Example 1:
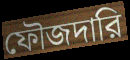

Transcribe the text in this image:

ফৌজদারি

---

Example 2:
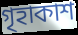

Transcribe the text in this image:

গৃহাকাশ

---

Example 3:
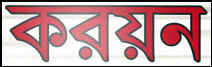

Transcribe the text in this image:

করয়ন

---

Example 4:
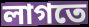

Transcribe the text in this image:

লাগতে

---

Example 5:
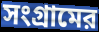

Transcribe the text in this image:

সংগ্রামের